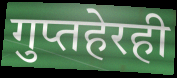
गुप्तहेरही